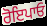
ਰੋਇਪਾਓ